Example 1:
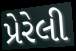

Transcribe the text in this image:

પ્રેરેલી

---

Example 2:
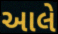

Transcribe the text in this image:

આલે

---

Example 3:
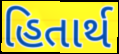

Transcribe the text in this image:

હિતાર્થ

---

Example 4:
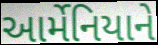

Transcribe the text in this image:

આર્મેનિયાને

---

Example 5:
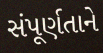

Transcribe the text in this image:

સંપૂર્ણતાને